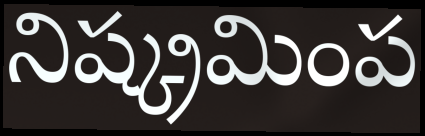
నిష్క్రమింప